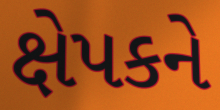
ક્ષેપકને